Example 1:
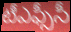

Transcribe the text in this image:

టీఎఫ్సీసీ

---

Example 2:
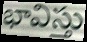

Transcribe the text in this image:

భావిస్తు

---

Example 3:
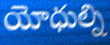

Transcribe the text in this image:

యోధుల్ని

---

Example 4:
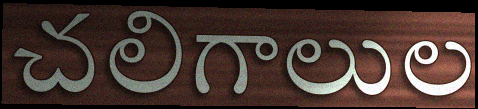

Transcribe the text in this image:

చలిగాలుల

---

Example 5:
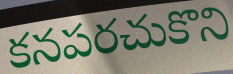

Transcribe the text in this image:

కనపరచుకొని